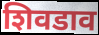
शिवडाव